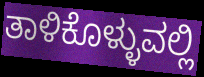
ತಾಳಿಕೊಳ್ಳುವಲ್ಲಿ